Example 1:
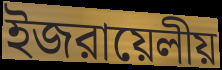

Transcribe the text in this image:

ইজরায়েলীয়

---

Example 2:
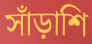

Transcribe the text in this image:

সাঁড়াশি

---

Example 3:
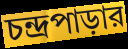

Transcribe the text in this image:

চন্দ্রপাড়ার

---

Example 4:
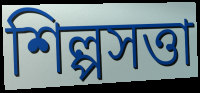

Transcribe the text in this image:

শিল্পসত্তা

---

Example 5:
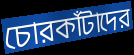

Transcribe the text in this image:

চোরকাঁটাদের